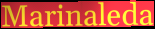
Marinaleda